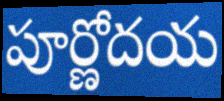
పూర్ణోదయ